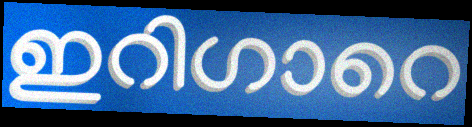
ഇറിഗാറെ